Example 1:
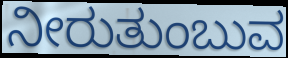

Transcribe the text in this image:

ನೀರುತುಂಬುವ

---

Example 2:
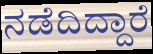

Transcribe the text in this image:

ನಡೆದಿದ್ದಾರೆ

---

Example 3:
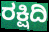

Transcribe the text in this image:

ರಕ್ಷಿದಿ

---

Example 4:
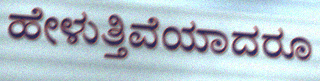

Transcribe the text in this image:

ಹೇಳುತ್ತಿವೆಯಾದರೂ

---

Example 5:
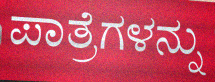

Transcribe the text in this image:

ಪಾತ್ರೆಗಳನ್ನು